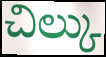
చిల్కు